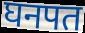
घनपत